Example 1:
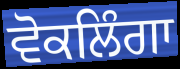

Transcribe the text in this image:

ਵੋਕਲਿੰਗਾ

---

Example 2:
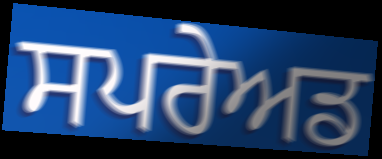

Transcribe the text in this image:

ਸਪਰੇਅਡ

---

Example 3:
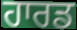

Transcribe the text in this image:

ਹਾਰਡ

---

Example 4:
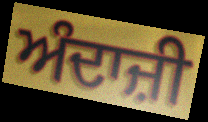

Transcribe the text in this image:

ਅੰਦਾਜ਼ੀ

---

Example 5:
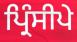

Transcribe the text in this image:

ਪ੍ਰਿੰਸੀਪੇ